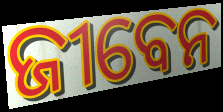
ଜୀବେନ